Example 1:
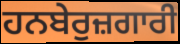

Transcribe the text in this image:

ਹਨਬੇਰੁਜ਼ਗਾਰੀ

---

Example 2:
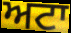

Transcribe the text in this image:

ਅਟਾ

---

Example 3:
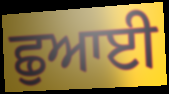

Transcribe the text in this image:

ਛੁਆਈ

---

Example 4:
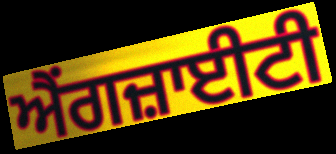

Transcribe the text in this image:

ਐਂਗਜ਼ਾਈਟੀ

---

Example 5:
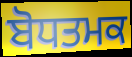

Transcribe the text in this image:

ਬੋਧਤਮਕ